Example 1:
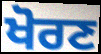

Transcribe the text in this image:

ਖੋਰਣ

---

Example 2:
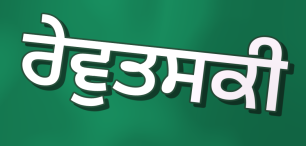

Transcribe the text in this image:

ਰੇਵੁਤਸਕੀ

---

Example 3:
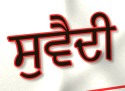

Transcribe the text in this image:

ਸੁਵੈਦੀ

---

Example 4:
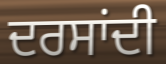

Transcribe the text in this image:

ਦਰਸਾਂਦੀ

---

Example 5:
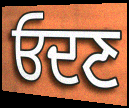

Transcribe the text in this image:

ਓਦਣ